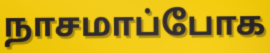
நாசமாப்போக